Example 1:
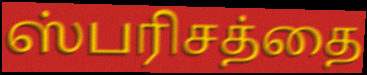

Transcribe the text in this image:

ஸ்பரிசத்தை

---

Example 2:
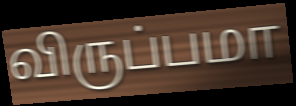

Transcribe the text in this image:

விருப்பமா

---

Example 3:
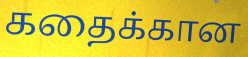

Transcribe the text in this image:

கதைக்கான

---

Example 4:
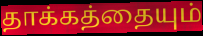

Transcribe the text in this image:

தாக்கத்தையும்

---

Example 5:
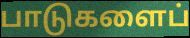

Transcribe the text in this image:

பாடுகளைப்